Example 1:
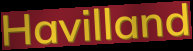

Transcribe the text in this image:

Havilland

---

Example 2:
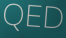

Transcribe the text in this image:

QED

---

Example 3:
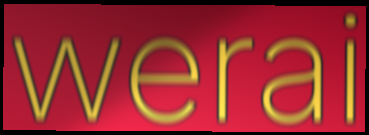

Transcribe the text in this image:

werai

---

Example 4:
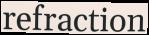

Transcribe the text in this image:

refraction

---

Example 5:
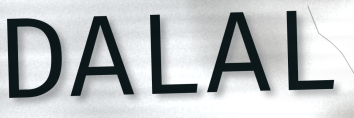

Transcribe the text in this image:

DALAL